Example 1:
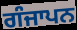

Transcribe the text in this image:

ਗੰਜਾਪਨ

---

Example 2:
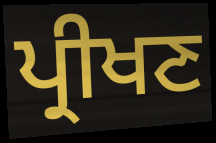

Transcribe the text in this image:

ਪ੍ਰੀਖਣ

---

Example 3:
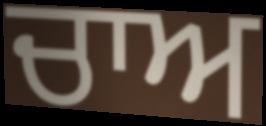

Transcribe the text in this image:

ਚਾਅ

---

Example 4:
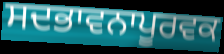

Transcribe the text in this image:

ਸਦਭਾਵਨਾਪੂਰਵਕ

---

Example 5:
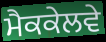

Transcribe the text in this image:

ਮੈਕਕੇਲਵੇ